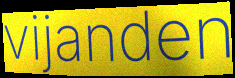
vijanden